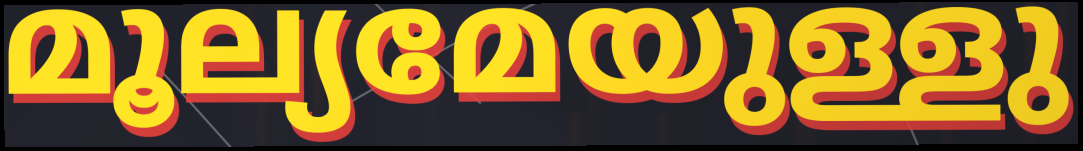
മൂല്യമേയുള്ളു